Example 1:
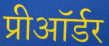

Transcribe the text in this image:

प्रीऑर्डर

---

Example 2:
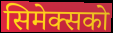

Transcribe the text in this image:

सिमेक्सको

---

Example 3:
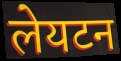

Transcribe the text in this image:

लेयटन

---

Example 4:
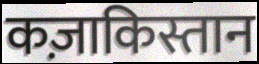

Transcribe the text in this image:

कज़ाकिस्तान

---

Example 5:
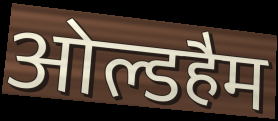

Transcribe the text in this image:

ओल्डहैम